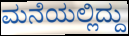
ಮನೆಯಲ್ಲಿದ್ದು